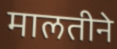
मालतीने